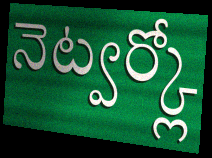
నెట్వర్క్లో